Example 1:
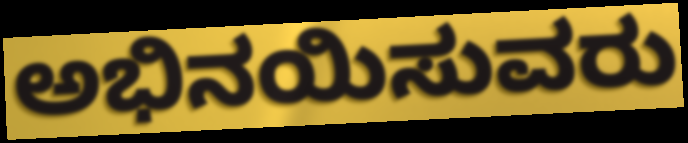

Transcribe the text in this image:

ಅಭಿನಯಿಸುವರು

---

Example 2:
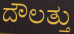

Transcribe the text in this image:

ದೌಲತ್ತು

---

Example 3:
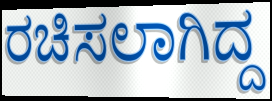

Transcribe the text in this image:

ರಚಿಸಲಾಗಿದ್ದ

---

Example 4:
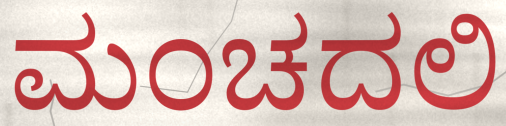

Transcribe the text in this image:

ಮಂಚದಲಿ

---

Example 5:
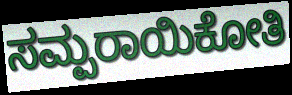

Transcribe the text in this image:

ಸಮ್ಪರಾಯಿಕೋತಿ